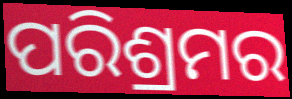
ପରିଶ୍ରମର